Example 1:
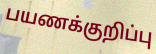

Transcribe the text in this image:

பயணக்குறிப்பு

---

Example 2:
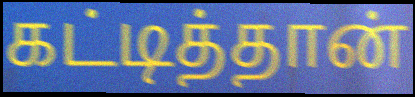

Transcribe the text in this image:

கட்டித்தான்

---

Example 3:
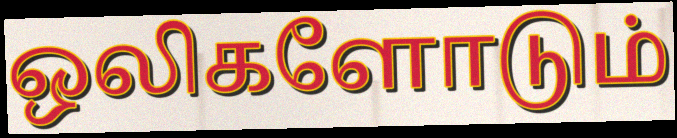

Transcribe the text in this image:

ஒலிகளோடும்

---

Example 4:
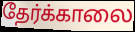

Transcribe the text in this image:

தேர்க்காலை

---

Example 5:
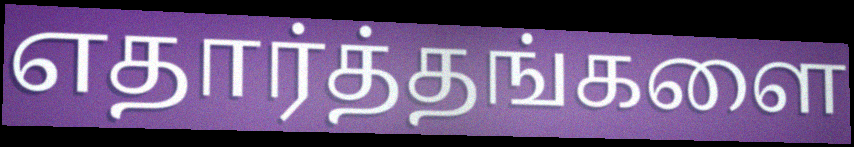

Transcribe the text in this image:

எதார்த்தங்களை